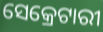
ସେକ୍ରେଟାରୀ